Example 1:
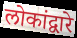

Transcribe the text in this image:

लोकांद्वारे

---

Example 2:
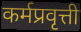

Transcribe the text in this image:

कर्मप्रवृत्ती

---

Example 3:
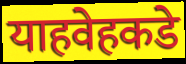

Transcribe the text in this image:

याहवेहकडे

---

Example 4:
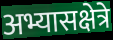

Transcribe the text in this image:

अभ्यासक्षेत्रे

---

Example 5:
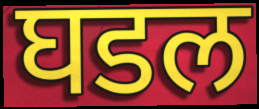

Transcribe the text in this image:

घडल